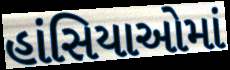
હાંસિયાઓમાં